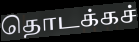
தொடக்கச்